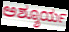
ಅಶ್ಶೂರ್ಯ